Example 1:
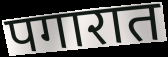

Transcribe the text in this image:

पगारात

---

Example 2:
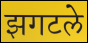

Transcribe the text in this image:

झगटले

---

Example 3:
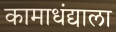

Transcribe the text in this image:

कामाधंद्याला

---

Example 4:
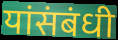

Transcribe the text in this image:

यांसंबंधी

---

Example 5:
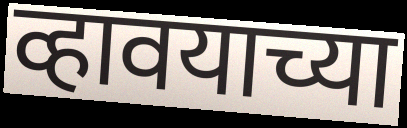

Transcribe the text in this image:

व्हावयाच्या